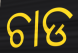
ଚାଡ